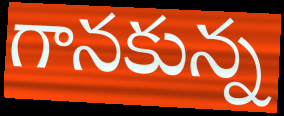
గానకున్న